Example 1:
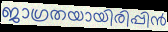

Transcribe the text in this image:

ജാഗ്രതയായിരിപ്പിൻ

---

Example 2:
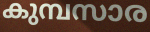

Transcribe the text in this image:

കുമ്പസാര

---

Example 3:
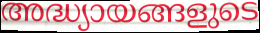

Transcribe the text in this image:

അദ്ധ്യായങ്ങളുടെ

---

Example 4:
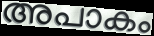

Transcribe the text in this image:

അപാകം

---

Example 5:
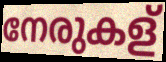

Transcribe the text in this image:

നേരുകള്